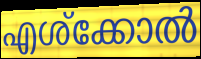
എശ്ക്കോൽ